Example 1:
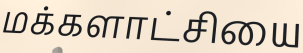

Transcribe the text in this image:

மக்களாட்சியை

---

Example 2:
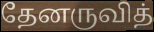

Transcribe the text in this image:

தேனருவித்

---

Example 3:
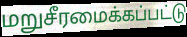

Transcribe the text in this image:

மறுசீரமைக்கப்பட்டு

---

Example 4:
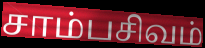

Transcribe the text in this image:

சாம்பசிவம்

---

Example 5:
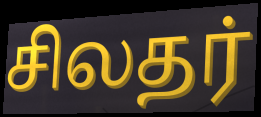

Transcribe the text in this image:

சிலதர்